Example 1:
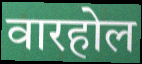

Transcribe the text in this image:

वारहोल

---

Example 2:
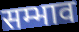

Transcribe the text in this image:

सम्भाव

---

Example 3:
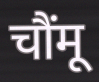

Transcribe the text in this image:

चौंमू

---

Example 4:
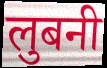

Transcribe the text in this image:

लुबनी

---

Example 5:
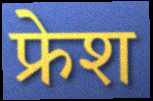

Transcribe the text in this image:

फ्रेश